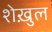
शेख़ुल